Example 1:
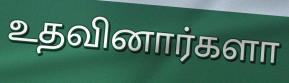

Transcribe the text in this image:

உதவினார்களா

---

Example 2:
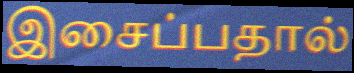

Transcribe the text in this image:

இசைப்பதால்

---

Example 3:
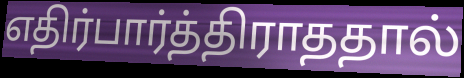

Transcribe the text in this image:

எதிர்பார்த்திராததால்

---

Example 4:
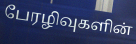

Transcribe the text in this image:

பேரழிவுகளின்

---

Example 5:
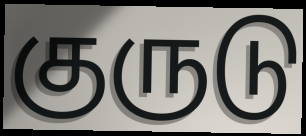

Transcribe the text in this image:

குருடு